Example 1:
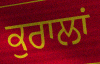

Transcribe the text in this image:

ਕੁਰਾਲਾਂ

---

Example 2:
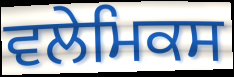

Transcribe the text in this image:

ਵਲੇਮਿਕਸ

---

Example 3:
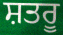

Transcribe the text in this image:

ਸ਼ਤਰੂ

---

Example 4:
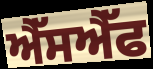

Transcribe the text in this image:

ਐੱਸਐੱਫ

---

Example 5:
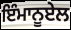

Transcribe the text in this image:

ਇੰਮਾਨੂਏਲ